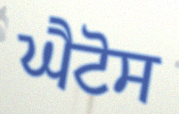
ਘੈਟੋਸ